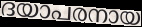
ദയാപരനായ